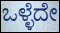
ಒಳ್ಳೆದೇ